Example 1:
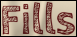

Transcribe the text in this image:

Fills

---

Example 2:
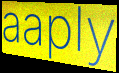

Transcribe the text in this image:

aaply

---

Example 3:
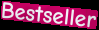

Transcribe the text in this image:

Bestseller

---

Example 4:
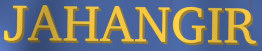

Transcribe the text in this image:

JAHANGIR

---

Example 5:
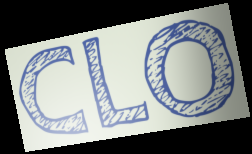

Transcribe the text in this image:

CLO